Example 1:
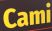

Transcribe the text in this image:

Cami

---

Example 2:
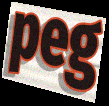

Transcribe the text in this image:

peg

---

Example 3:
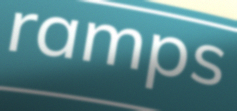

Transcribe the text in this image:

ramps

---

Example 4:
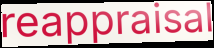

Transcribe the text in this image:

reappraisal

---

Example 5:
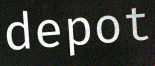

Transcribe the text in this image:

depot